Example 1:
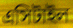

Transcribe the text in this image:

এসিটাইল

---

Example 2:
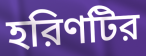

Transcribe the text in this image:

হরিণটির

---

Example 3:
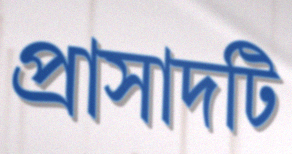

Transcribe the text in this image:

প্রাসাদটি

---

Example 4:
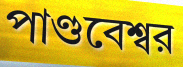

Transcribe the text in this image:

পাণ্ডবেশ্বর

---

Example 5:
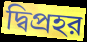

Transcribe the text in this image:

দ্বিপ্রহর